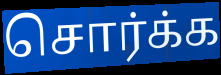
சொர்க்க